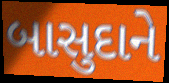
બાસુદાને